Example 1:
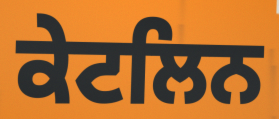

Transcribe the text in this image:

ਕੇਟਲਿਨ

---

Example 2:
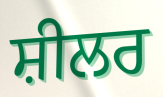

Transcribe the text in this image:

ਸ਼ੀਲਰ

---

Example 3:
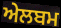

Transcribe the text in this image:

ਅੇਲਬਮ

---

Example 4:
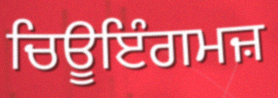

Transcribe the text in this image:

ਚਿਊਇੰਗਮਜ਼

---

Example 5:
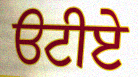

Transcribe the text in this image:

ੳਟੀਏ